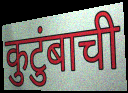
कुटुंबाची